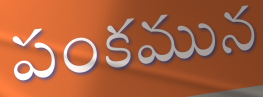
పంకమున